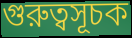
গুরুত্বসূচক